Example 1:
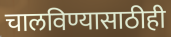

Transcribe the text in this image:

चालविण्यासाठीही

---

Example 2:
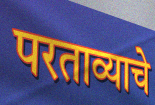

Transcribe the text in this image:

परताव्याचे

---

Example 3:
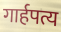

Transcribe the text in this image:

गार्हपत्य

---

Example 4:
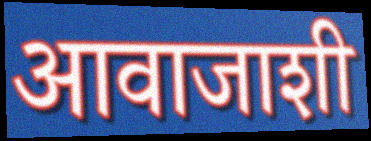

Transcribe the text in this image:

आवाजाशी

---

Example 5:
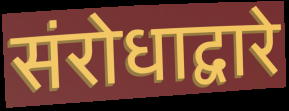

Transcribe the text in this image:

संरोधाद्वारे